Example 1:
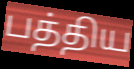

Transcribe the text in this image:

பத்திய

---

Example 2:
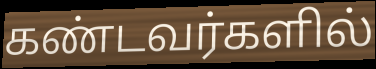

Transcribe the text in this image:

கண்டவர்களில்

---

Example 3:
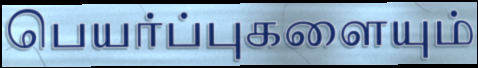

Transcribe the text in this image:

பெயர்ப்புகளையும்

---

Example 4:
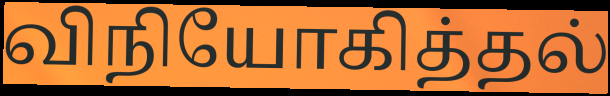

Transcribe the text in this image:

விநியோகித்தல்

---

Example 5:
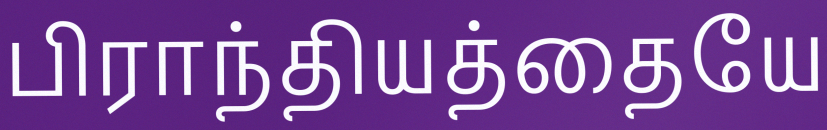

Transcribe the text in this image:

பிராந்தியத்தையே